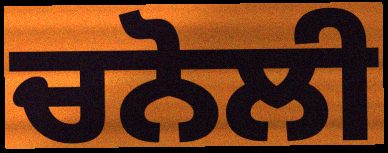
ਚਨੋਲੀ